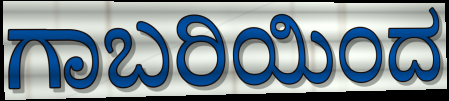
ಗಾಬರಿಯಿಂದ